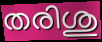
തരിശു